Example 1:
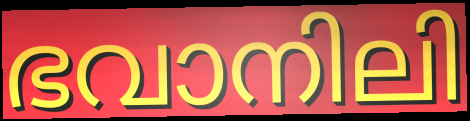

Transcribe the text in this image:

ഭവാനിലി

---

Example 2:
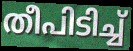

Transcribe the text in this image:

തീപിടിച്ച്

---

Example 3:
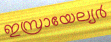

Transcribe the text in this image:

ഇസ്രായേല്യർ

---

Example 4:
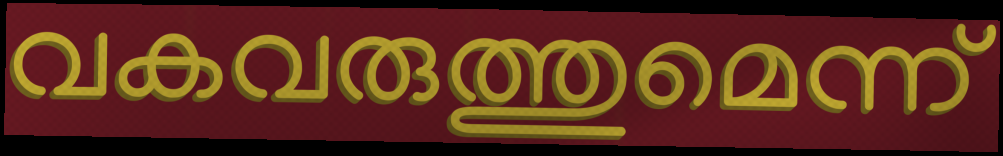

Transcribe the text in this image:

വകവരുത്തുമെന്ന്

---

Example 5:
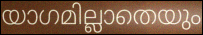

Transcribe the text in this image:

യാഗമില്ലാതെയും